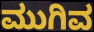
ಮುಗಿವ